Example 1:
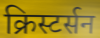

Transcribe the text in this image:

क्रिस्टर्सन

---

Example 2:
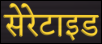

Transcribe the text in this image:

सेरेटाइड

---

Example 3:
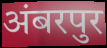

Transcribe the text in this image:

अंबरपुर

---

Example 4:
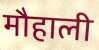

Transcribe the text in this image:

मौहाली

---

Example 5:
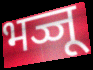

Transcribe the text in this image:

भज्जू